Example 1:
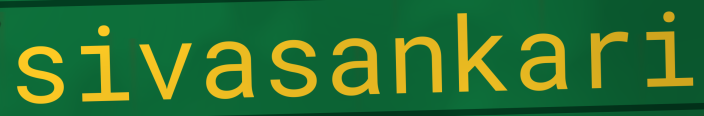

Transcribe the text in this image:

sivasankari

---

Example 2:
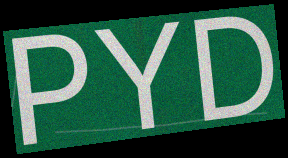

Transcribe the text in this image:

PYD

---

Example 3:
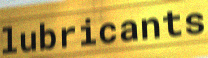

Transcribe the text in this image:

lubricants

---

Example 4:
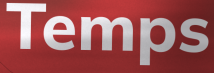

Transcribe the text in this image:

Temps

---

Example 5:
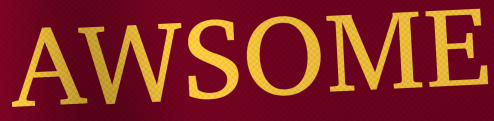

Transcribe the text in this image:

AWSOME